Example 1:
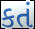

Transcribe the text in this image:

કતં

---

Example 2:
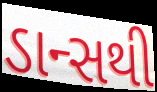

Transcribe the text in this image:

ડાન્સથી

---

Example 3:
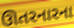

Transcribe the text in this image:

ઊતરનારના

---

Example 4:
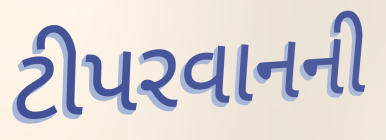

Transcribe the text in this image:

ટીપરવાનની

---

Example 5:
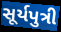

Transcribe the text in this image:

સૂર્યપુત્રી